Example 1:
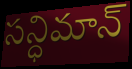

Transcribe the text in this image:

సన్ధిమాన్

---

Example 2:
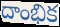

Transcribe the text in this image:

దాంభిక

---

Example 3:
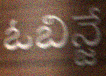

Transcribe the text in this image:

ఓబిన్జే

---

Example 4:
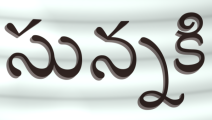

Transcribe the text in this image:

సున్నకి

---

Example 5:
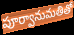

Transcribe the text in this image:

పూర్వానుమతితో